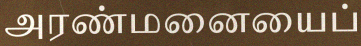
அரண்மனையைப்